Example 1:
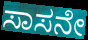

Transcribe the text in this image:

ಸಾಸನೇ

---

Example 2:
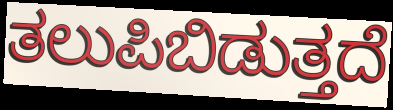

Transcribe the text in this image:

ತಲುಪಿಬಿಡುತ್ತದೆ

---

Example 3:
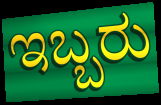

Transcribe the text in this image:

ಇಬ್ಬರು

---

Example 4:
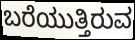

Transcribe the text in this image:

ಬರೆಯುತ್ತಿರುವ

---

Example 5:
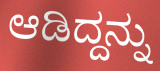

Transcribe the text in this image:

ಆಡಿದ್ದನ್ನು